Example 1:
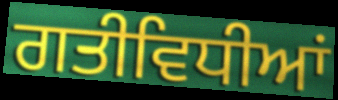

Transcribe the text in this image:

ਗਤੀਵਿਧੀਆਂ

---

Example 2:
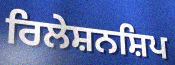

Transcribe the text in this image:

ਰਿਲੇਸ਼ਨਸ਼ਿਪ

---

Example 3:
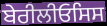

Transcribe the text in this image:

ਬੇਰੀਲੀਓਸਿਸ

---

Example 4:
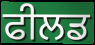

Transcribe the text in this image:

ਫੀਲਡ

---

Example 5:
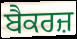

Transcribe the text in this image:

ਬੈਕਰਜ਼